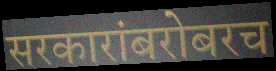
सरकारांबरोबरच